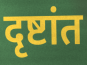
दृष्टांत